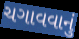
ચગાવવાનું